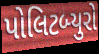
પોલિટબ્યુરો